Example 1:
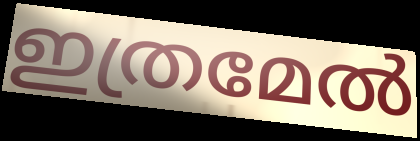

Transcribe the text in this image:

ഇത്രമേൽ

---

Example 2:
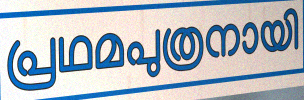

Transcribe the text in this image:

പ്രഥമപുത്രനായി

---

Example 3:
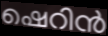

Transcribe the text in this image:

ഷെറിൻ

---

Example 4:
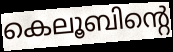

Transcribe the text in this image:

കെലൂബിന്റെ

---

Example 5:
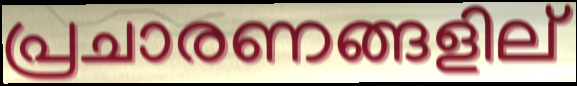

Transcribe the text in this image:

പ്രചാരണങ്ങളില്